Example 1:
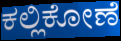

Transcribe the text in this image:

ಕಲ್ಲಿಕೋಣೆ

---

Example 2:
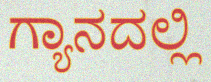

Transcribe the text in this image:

ಗ್ಯಾನದಲ್ಲಿ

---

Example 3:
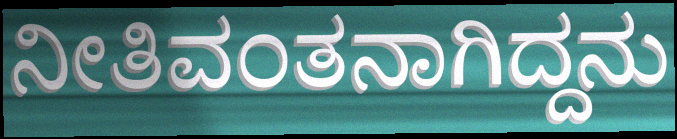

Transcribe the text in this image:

ನೀತಿವಂತನಾಗಿದ್ದನು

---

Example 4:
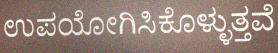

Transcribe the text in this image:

ಉಪಯೋಗಿಸಿಕೊಳ್ಳುತ್ತವೆ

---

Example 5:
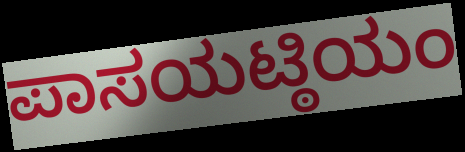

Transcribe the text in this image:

ಪಾಸಯಟ್ಠಿಯಂ